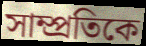
সাম্প্রতিকে